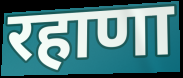
रहाणा